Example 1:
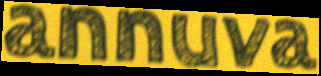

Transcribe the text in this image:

annuva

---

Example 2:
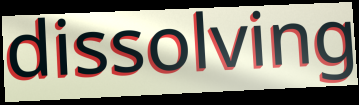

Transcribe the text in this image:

dissolving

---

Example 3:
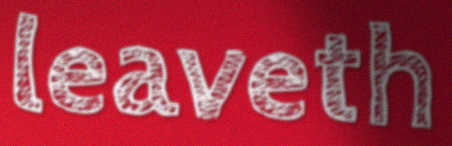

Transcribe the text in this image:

leaveth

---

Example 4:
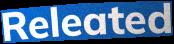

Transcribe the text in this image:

Releated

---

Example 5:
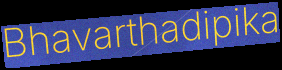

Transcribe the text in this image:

Bhavarthadipika